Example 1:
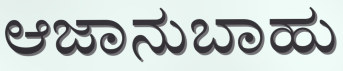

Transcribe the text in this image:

ಆಜಾನುಬಾಹು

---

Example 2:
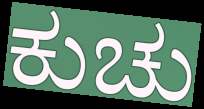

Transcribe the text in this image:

ಕುಚು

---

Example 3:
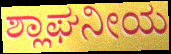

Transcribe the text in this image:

ಶ್ಲಾಘನೀಯ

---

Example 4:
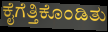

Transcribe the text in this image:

ಕೈಗೆತ್ತಿಕೊಂಡಿತು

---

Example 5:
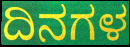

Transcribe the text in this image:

ದಿನಗಳ